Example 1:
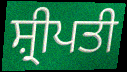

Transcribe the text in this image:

ਸ਼੍ਰੀਪਤੀ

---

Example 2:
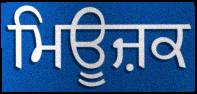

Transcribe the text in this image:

ਮਿਊਜ਼ਕ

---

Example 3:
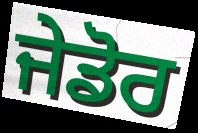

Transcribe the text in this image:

ਜੇਡੋਰ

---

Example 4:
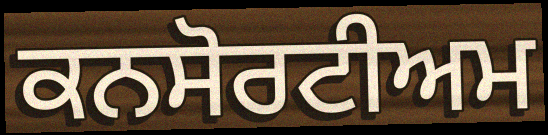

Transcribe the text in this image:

ਕਨਸੋਰਟੀਅਮ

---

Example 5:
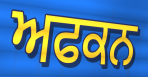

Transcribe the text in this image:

ਅਫਕਨ